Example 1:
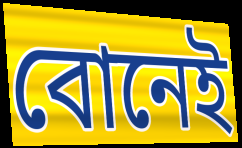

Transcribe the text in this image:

বোনেই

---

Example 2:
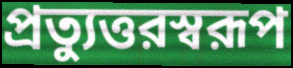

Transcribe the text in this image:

প্রত্যুত্তরস্বরূপ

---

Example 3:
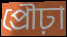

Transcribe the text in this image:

প্রৌঢ়া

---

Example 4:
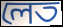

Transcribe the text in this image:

লেত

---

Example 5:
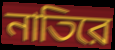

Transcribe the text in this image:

নাতিরে